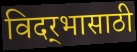
विदर्भासाठी